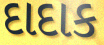
દાદાક